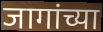
जागांच्या